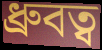
ধ্রুবত্ব